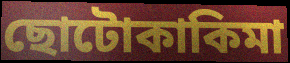
ছোটোকাকিমা